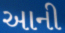
આની